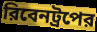
রিবেনট্রপের